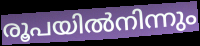
രൂപയിൽനിന്നും